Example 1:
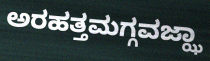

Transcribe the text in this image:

ಅರಹತ್ತಮಗ್ಗವಜ್ಝಾ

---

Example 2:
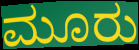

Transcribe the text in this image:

ಮೂರು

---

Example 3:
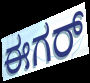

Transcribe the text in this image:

ಈಗರ್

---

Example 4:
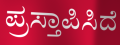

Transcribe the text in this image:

ಪ್ರಸ್ತಾಪಿಸಿದೆ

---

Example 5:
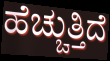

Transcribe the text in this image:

ಹೆಚ್ಚುತ್ತಿದೆ